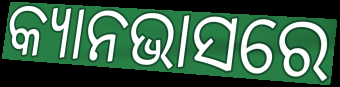
କ୍ୟାନଭାସରେ